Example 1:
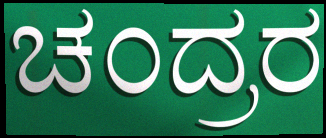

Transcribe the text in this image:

ಚಂದ್ರರ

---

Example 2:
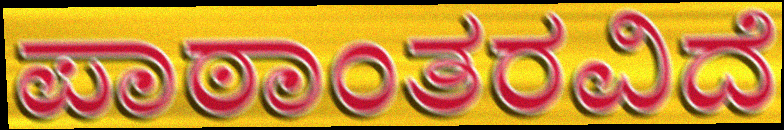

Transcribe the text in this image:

ಪಾಠಾಂತರವಿದೆ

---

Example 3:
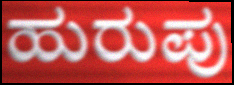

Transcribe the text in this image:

ಹುರುಪು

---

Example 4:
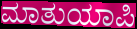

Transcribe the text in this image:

ಮಾತುಯಾಪಿ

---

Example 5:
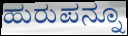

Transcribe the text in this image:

ಹುರುಪನ್ನೂ